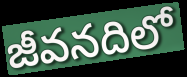
జీవనదిలో